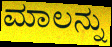
ಮಾಲನ್ನು